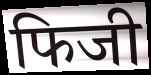
फिजी